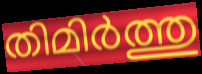
തിമിർത്തു